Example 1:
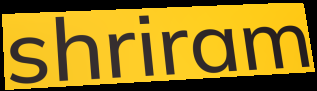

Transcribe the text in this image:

shriram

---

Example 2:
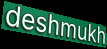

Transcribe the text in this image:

deshmukh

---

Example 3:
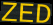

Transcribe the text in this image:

ZED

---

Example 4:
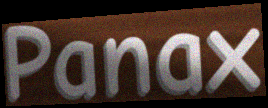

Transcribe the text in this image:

Panax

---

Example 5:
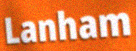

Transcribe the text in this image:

Lanham